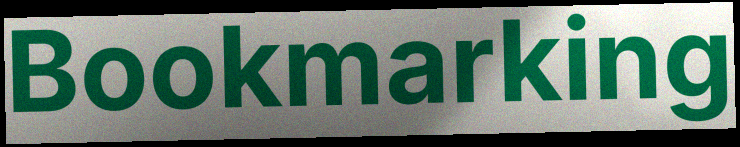
Bookmarking